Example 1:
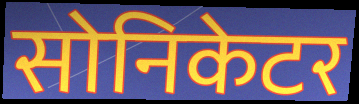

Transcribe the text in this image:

सोनिकेटर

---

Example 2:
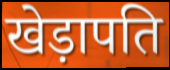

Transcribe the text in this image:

खेड़ापति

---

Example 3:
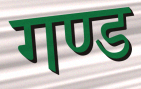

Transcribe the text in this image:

गण्ड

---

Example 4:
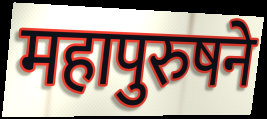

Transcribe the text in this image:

महापुरुषने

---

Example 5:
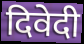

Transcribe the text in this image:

दिवेदी